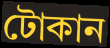
টোকান